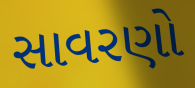
સાવરણો